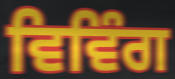
ਵਿਵਿੰਗ